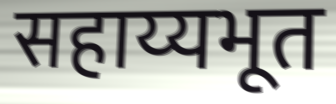
सहाय्यभूत